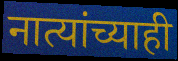
नात्यांच्याही